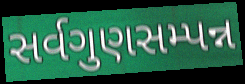
સર્વગુણસમ્પન્ન